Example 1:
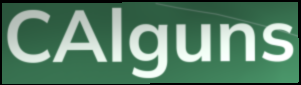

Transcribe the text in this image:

CAlguns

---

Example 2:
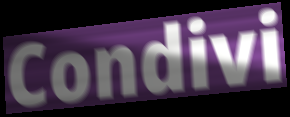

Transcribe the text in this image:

Condivi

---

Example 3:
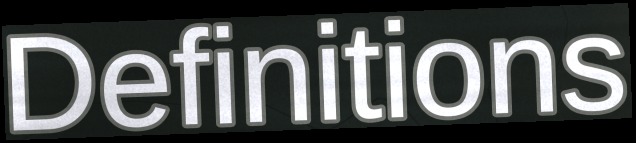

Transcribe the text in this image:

Definitions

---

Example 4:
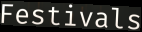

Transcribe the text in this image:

Festivals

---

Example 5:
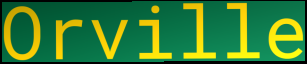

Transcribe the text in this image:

Orville